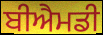
ਬੀਐਮਡੀ